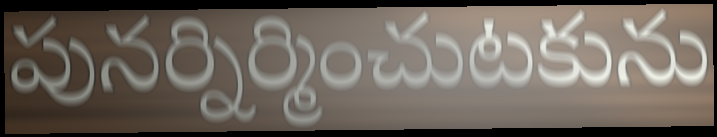
పునర్నిర్మించుటకును